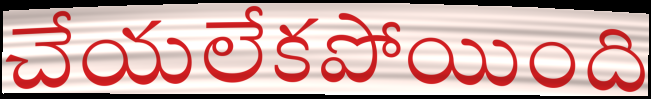
చేయలేకపోయింది